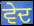
ਵੇਦ